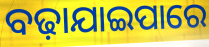
ବଢ଼ାଯାଇପାରେ